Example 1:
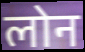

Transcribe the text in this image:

लोन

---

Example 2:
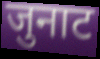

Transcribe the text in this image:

जुनाट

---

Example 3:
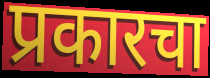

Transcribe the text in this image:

प्रकारचा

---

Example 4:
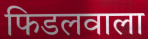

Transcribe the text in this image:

फिडलवाला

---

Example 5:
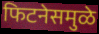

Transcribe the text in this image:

फिटनेसमुळे